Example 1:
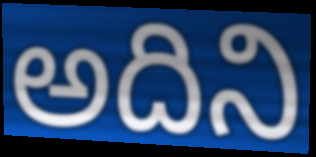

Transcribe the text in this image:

అదిని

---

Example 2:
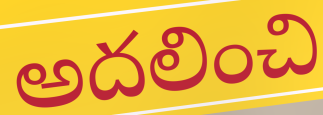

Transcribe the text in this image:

అదలించి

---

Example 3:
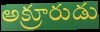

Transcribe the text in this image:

అక్రూరుడు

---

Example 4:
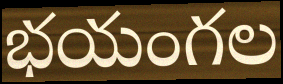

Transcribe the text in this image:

భయంగల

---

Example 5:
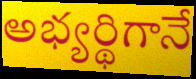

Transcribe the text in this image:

అభ్యర్థిగానే